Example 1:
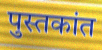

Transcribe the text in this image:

पुस्तकांत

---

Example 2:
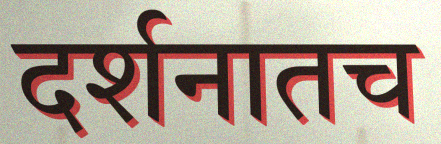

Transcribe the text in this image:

दर्शनातच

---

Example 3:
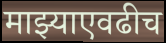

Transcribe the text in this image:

माझ्याएवढीच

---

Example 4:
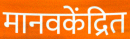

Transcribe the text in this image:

मानवकेंद्रित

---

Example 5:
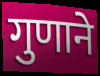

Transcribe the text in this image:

गुणाने